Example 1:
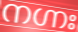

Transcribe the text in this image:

നഗ്നഃ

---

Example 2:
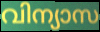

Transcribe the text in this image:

വിന്യാസ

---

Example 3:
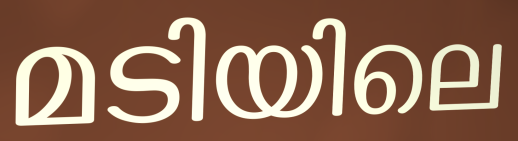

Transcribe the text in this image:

മടിയിലെ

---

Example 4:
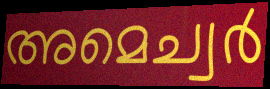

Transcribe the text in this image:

അമെച്വർ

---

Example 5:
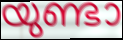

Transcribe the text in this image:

യുണ്ടാ